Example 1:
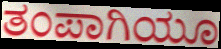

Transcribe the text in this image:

ತಂಪಾಗಿಯೂ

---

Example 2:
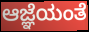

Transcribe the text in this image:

ಆಜ್ಞೆಯಂತೆ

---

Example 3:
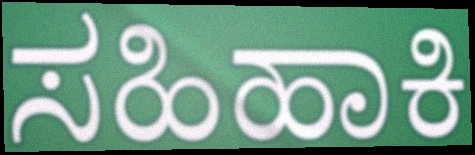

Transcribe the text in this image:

ಸಹಿಹಾಕಿ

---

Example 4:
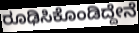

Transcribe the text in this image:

ರೂಢಿಸಿಕೊಂಡಿದ್ದೇನೆ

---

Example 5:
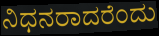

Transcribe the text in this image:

ನಿಧನರಾದರೆಂದು